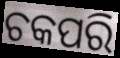
ଚକପରି